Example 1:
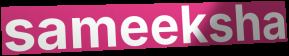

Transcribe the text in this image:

sameeksha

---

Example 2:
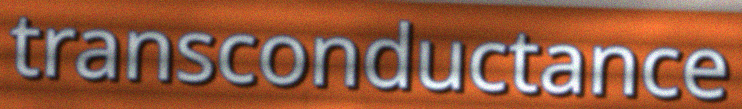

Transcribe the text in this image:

transconductance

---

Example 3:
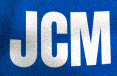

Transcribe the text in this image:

JCM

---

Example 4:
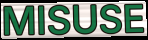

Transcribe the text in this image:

MISUSE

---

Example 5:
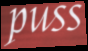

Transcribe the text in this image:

puss